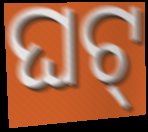
ଘଟ୍